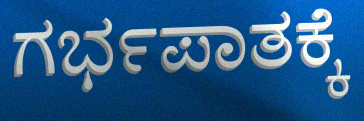
ಗರ್ಭಪಾತಕ್ಕೆ